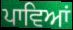
ਪਾਵਿਆਂ